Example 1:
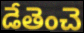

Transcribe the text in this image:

డేతెంచె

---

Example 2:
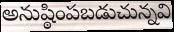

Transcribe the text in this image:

అనుష్ఠింపబడుచున్నవి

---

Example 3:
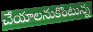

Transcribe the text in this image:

చేయాలనుకొంటున్న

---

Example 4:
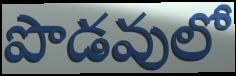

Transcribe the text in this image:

పొడవులో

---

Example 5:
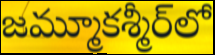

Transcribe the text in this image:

జమ్మూకశ్మీర్‌లో